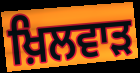
ਖ਼ਿਲਵਾੜ